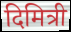
दिमित्री